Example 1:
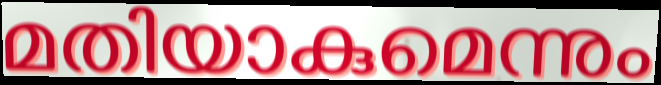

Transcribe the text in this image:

മതിയാകുമെന്നും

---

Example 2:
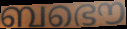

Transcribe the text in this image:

ബഭൌ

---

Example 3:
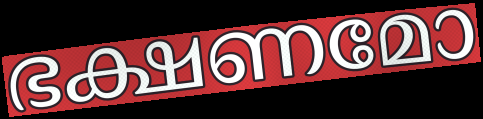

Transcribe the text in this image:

ഭക്ഷണമോ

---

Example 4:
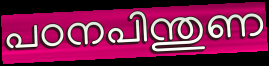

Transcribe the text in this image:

പഠനപിന്തുണ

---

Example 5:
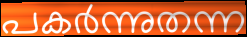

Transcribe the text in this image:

പകർന്നുതന്ന